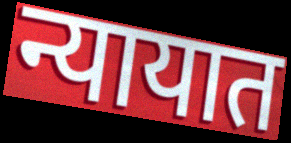
न्यायात